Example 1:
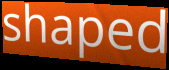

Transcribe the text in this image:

shaped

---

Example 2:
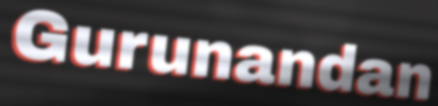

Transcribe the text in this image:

Gurunandan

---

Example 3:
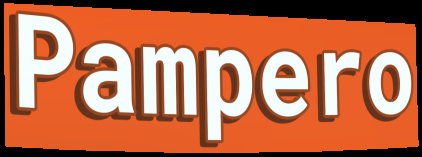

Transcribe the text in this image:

Pampero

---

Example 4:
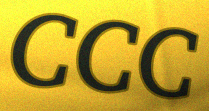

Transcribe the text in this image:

CCC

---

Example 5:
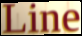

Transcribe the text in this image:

Line